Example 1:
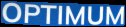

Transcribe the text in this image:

OPTIMUM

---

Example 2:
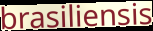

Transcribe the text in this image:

brasiliensis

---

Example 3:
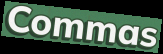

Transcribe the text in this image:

Commas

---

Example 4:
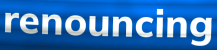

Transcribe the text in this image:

renouncing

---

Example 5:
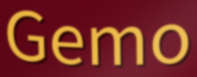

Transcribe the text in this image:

Gemo